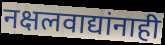
नक्षलवाद्यांनाही